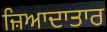
ਜ਼ਿਆਦਾਤਾਰ